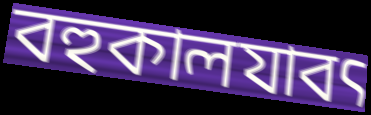
বহুকালযাবৎ